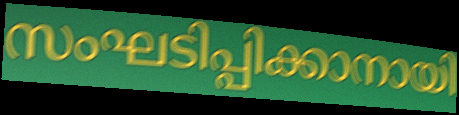
സംഘടിപ്പിക്കാനായി